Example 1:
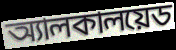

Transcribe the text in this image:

অ্যালকালয়েড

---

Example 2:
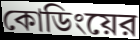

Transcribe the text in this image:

কোডিংয়ের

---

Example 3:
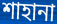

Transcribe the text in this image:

শাহানা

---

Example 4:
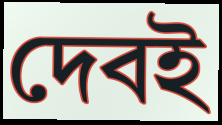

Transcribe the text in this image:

দেবই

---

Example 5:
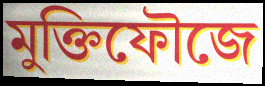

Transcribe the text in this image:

মুক্তিফৌজে